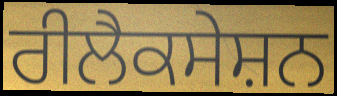
ਰੀਲੈਕਸੇਸ਼ਨ